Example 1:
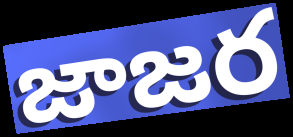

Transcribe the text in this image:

జాజర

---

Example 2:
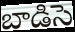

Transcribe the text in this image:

బాడిసె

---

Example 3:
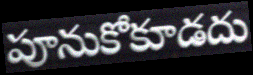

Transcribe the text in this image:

పూనుకోకూడదు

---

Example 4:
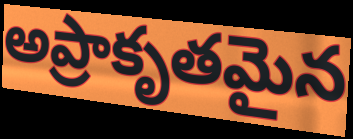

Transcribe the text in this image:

అప్రాకృతమైన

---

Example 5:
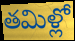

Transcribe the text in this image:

తమిళ్లో